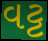
વટ્ટ